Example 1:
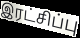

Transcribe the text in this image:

இரட்சிப்பு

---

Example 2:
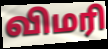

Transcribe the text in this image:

விமரி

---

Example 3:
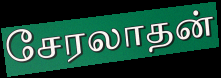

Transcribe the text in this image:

சேரலாதன்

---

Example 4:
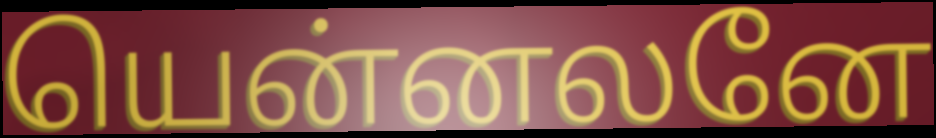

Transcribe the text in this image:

யென்னலனே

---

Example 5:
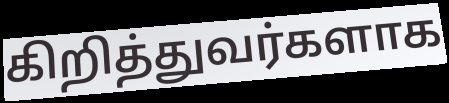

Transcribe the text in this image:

கிறித்துவர்களாக